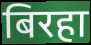
बिरहा